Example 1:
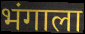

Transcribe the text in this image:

भंगाला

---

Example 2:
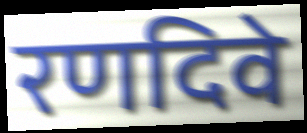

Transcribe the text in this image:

रणदिवे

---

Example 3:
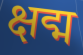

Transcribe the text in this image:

क्षद्म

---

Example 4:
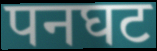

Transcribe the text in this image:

पनघट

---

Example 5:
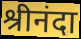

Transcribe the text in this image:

श्रीनंदा